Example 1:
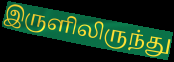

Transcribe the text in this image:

இருளிலிருந்து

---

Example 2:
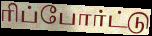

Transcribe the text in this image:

ரிப்போர்ட்டு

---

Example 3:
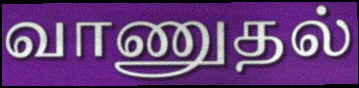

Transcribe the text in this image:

வாணுதல்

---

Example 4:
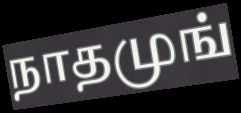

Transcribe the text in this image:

நாதமுங்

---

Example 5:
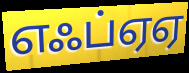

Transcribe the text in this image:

எஃப்ஏஏ